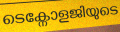
ടെക്നോളജിയുടെ